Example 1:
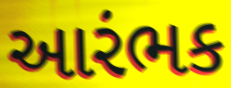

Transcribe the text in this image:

આરંભક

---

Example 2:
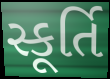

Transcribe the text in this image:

સ્કૂર્તિ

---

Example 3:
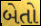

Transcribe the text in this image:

બેતો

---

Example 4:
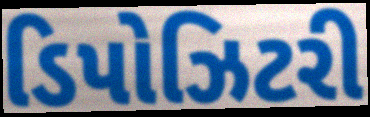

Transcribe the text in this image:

ડિપોઝિટરી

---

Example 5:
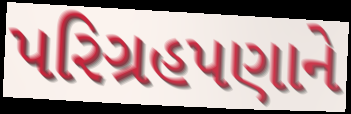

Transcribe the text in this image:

પરિગ્રહપણાને